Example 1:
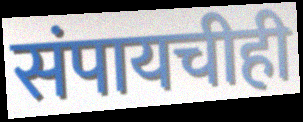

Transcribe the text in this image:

संपायचीही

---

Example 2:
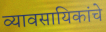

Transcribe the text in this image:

व्यावसायिकांचे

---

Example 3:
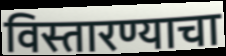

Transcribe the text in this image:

विस्तारण्याचा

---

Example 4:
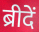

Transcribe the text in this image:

ब्रीदें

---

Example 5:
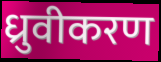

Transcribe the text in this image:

ध्रुवीकरण